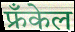
फ्रँकेल